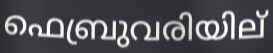
ഫെബ്രുവരിയില്